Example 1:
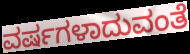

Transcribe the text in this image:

ವರ್ಷಗಳಾದುವಂತೆ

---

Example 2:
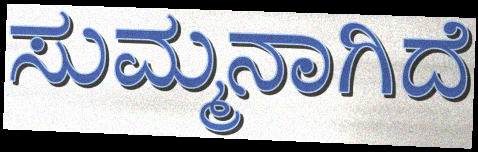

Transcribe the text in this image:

ಸುಮ್ಮನಾಗಿದೆ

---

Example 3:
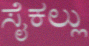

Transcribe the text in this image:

ಸೈಕಲ್ಲು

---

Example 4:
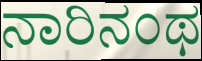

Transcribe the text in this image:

ನಾರಿನಂಥ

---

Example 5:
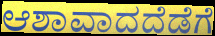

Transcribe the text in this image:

ಆಶಾವಾದದೆಡೆಗೆ